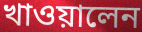
খাওয়ালেন